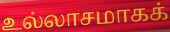
உல்லாசமாகக்